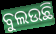
ବୁଲଉଛି